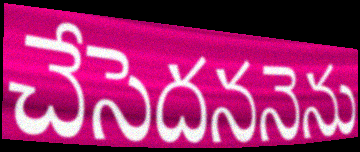
చేసెదననెను